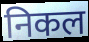
निकल